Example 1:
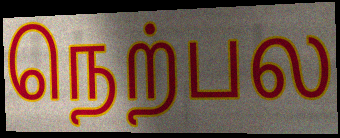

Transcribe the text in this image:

நெற்பல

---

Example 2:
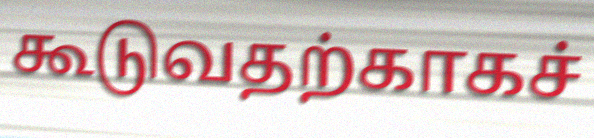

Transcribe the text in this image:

கூடுவதற்காகச்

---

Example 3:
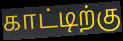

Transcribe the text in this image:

காட்டிற்கு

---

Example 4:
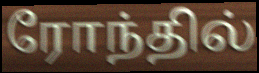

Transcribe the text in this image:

ரோந்தில்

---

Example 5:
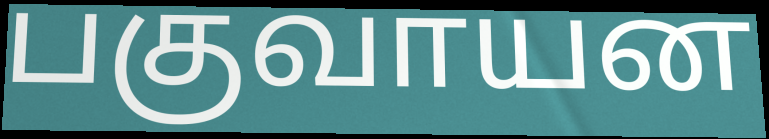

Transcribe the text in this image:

பகுவாயன